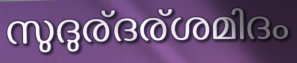
സുദുര്ദര്ശമിദം